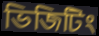
ভিজিটিং